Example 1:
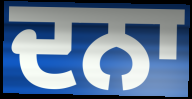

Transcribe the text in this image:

ਦਨਾ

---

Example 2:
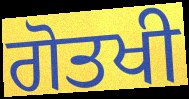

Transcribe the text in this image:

ਗੋਤਖੀ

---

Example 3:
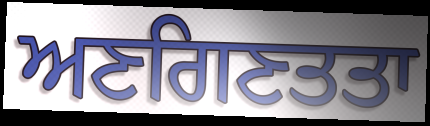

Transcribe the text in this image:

ਅਣਗਿਣਤਤਾ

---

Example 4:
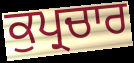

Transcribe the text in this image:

ਕੁਪ੍ਰਚਾਰ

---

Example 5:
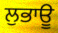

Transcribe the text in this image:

ਲੁਭਾਊ